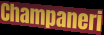
Champaneri